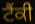
ਟੈਂਕੀ